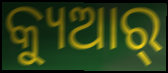
କ୍ୟୁଆର୍